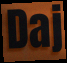
Daj